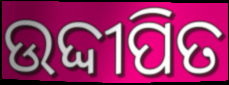
ଉଦ୍ଦୀପିତ